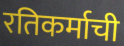
रतिकर्माची